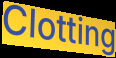
Clotting